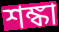
শঙ্কা